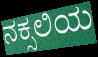
ನಕ್ಸಲಿಯ